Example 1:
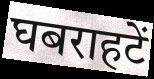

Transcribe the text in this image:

घबराहटें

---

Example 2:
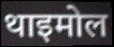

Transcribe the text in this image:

थाइमोल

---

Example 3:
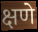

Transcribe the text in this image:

क्षणे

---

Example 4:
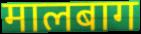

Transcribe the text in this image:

मालबाग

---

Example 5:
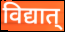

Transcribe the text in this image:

विद्यात्